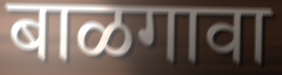
बाळगावा